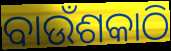
ବାଉଁଶକାଠି